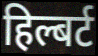
हिल्बर्ट